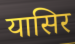
यासिर